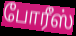
போரீஸ்